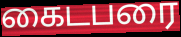
கைடபரை